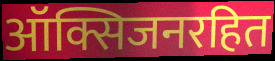
ऑक्सिजनरहित